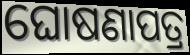
ଘୋଷଣାପତ୍ର